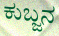
ಕುಬ್ಜನ